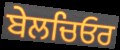
ਬੇਲਚਿਓਰ